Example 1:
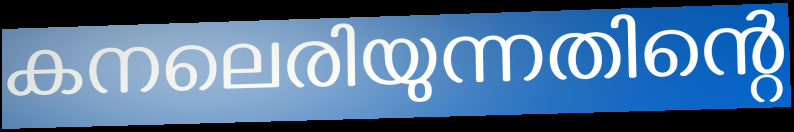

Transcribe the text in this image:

കനലെരിയുന്നതിന്റെ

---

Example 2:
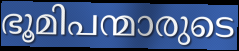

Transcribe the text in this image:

ഭൂമിപന്മാരുടെ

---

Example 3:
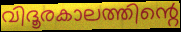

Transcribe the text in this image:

വിദൂരകാലത്തിന്റെ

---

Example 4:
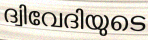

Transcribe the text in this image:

ദ്വിവേദിയുടെ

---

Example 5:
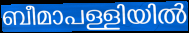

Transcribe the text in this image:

ബീമാപള്ളിയിൽ